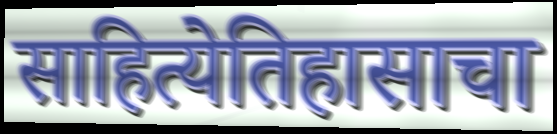
साहित्येतिहासाचा